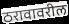
ठरावावरील